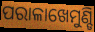
ପରାଳାଖେମୁଣ୍ଡି